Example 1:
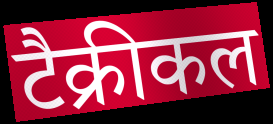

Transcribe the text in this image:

टैक्रीकल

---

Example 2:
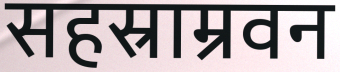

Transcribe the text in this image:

सहस्राम्रवन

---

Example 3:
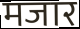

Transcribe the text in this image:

मजार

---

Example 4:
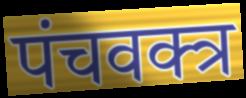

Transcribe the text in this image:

पंचवक्त्र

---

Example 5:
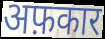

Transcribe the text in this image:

अफ़कार